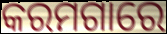
କରମଗାରେ